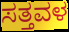
ಸತ್ತವಳ